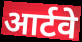
आर्टवे